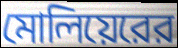
মোলিয়েরের